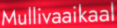
Mullivaaikaal